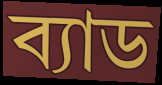
ব্যাড